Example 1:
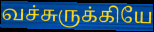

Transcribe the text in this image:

வச்சுருக்கியே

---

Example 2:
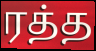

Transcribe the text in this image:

ரத்த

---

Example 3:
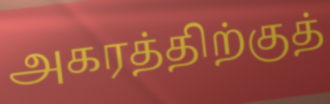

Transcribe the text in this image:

அகரத்திற்குத்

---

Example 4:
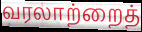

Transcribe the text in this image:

வரலாற்றைத்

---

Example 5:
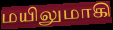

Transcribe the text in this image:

மயிலுமாகி